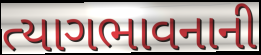
ત્યાગભાવનાની